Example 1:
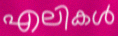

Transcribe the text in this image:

എലികൾ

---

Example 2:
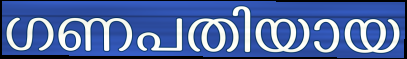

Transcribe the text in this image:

ഗണപതിയായ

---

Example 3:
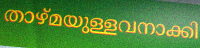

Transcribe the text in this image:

താഴ്മയുള്ളവനാക്കി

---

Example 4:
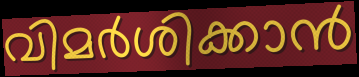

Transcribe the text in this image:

വിമർശിക്കാൻ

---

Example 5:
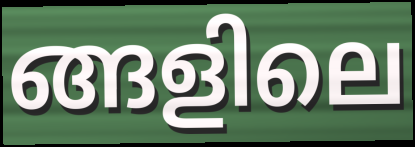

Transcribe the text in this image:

ങ്ങളിലെ